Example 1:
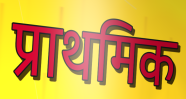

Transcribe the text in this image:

प्राथमिक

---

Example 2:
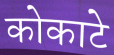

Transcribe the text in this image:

कोकाटे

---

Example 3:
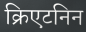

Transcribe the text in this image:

क्रिएटनिन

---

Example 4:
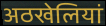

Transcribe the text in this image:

अठखेलियां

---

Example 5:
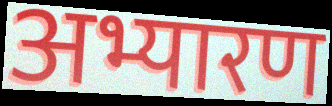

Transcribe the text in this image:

अभ्यारण